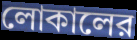
লোকালের